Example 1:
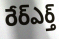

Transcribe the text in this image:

రేర్ఎర్త్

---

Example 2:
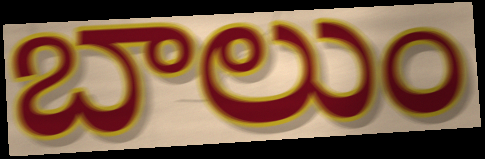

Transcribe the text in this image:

బాలుం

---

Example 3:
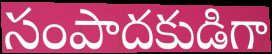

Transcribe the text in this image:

సంపాదకుడిగా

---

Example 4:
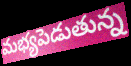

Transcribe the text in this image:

మభ్యపెడుతున్న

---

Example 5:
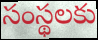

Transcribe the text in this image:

సంస్థలకు